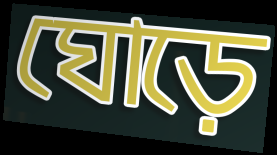
ঘোড়ে